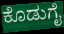
ಕೊಡುಗೈ